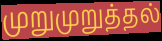
முறுமுறுத்தல்